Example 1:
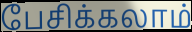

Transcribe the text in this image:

பேசிக்கலாம்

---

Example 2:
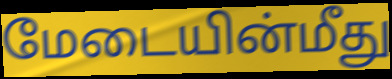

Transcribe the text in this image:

மேடையின்மீது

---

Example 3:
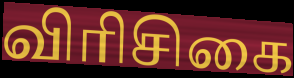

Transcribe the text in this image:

விரிசிகை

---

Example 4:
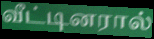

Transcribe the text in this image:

வீட்டினரால்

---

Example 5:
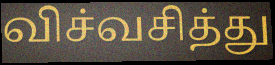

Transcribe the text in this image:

விச்வசித்து